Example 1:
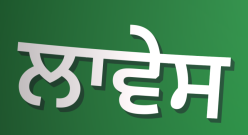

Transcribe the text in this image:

ਲਾਵੇਸ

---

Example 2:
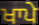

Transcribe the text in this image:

ਖਾਪੇ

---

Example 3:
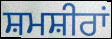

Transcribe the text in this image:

ਸ਼ਮਸ਼ੀਰਾਂ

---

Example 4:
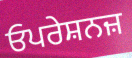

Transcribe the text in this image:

ਓਪਰੇਸ਼ਨਜ਼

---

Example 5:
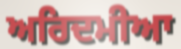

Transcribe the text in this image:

ਅਰਿਦਮੀਆ